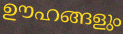
ഊഹങ്ങളും